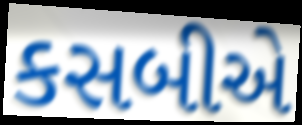
કસબીએ